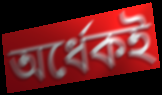
অর্ধেকই